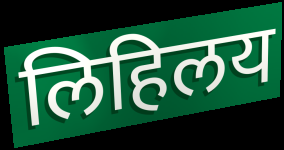
लिहिलय